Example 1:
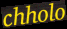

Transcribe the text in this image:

chholo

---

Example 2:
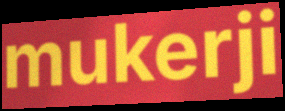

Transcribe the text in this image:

mukerji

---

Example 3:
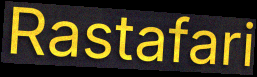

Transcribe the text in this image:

Rastafari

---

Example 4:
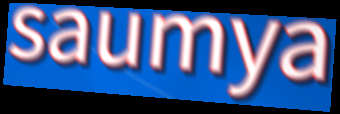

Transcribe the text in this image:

saumya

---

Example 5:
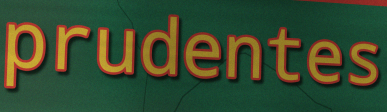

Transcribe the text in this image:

prudentes